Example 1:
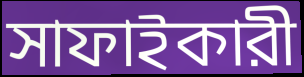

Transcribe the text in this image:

সাফাইকারী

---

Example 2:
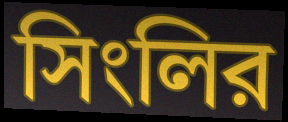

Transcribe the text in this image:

সিংলির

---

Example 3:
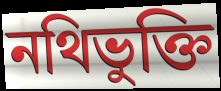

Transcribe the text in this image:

নথিভুক্তি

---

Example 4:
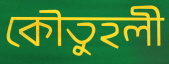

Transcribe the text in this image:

কৌতুহলী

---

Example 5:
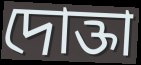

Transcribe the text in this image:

দোক্তা